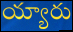
య్యారు